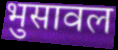
भुसावल